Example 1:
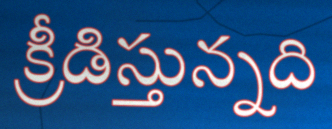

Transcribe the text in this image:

క్రీడిస్తున్నది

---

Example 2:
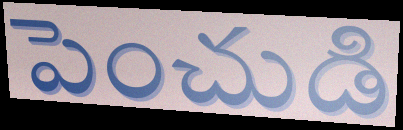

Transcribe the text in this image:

పెంచుడి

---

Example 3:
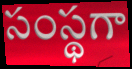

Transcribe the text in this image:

సంస్థగా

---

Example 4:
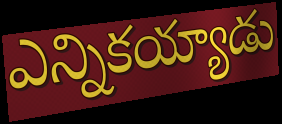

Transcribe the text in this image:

ఎన్నికయ్యాడు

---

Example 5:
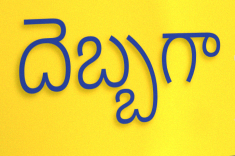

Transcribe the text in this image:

దెబ్బగా